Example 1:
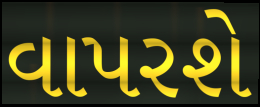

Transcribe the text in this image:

વાપરશે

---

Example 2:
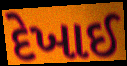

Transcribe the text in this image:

દેખાઈ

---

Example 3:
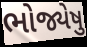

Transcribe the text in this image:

ભોજ્યેષુ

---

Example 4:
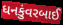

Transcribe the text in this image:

ધનકુંવરબાઈ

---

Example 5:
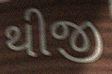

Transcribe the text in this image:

થીજી